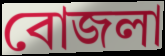
বোজলা